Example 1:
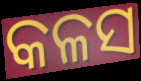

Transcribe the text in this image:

କଳସ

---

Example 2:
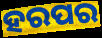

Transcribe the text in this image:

ହରପର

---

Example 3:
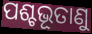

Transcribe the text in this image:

ପଶ୍ଚଭୂତାଣୁ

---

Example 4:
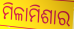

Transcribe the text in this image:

ମିଳାମିଶାର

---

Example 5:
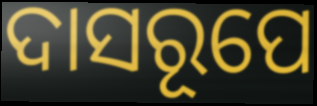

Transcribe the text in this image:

ଦାସରୂପେ